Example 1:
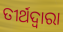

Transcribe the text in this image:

ତୀର୍ଥଦ୍ବାରା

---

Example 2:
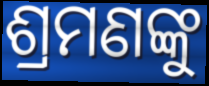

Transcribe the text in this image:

ଶ୍ରମଣଙ୍କୁ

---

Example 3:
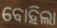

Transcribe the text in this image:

ବୋହିଲା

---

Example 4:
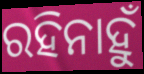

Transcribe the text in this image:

ରହିନାହୁଁ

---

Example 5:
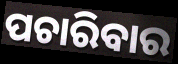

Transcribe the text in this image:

ପଚାରିବାର